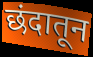
छंदातून